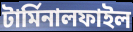
টার্মিনালফাইল